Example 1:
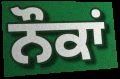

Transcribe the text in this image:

ਨੌਕਾਂ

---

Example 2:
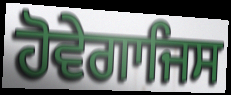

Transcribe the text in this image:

ਹੋਵੇਗਾਜਿਸ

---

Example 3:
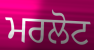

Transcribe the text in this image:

ਮਰਲੋਟ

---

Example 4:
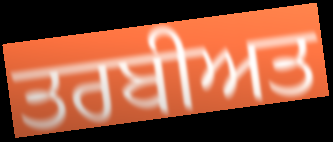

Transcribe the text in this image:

ਤਰਬੀਅਤ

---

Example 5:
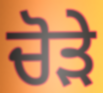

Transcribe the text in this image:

ਚੋੜੇ